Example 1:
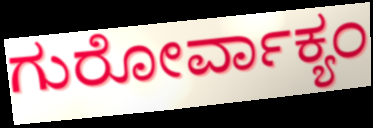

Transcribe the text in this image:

ಗುರೋರ್ವಾಕ್ಯಂ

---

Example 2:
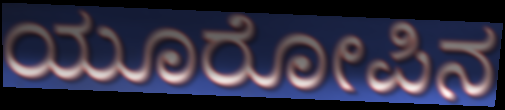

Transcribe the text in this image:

ಯೂರೋಪಿನ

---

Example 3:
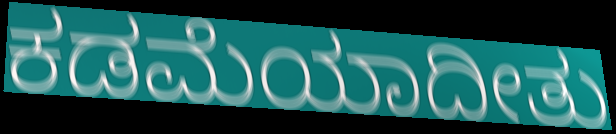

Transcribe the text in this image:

ಕಡಮೆಯಾದೀತು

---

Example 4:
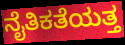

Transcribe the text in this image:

ನೈತಿಕತೆಯತ್ತ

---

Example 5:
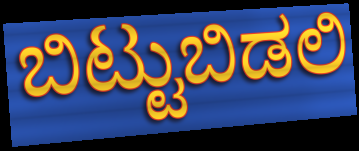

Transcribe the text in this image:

ಬಿಟ್ಟುಬಿಡಲಿ